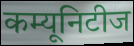
कम्यूनिटीज